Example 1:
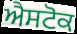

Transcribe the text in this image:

ਐਸਟੋਕ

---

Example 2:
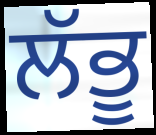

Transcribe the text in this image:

ਲੱਭੂ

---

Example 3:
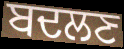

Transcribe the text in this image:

ਬਦਲਣ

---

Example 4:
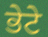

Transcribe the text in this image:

ਭੇਟੇ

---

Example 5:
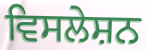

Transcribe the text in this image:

ਵਿਸਲੇਸ਼ਨ